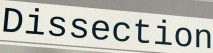
Dissection